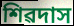
শিৱদাস